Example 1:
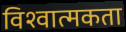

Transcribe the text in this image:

विश्वात्मकता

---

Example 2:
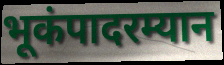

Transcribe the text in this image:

भूकंपादरम्यान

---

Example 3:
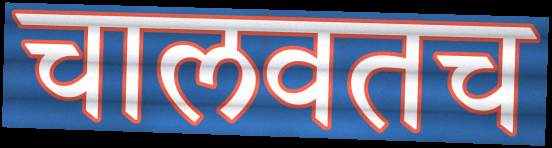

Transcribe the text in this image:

चालवतच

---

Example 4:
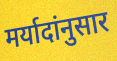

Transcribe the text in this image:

मर्यादांनुसार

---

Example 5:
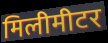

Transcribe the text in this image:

मिलीमीटर